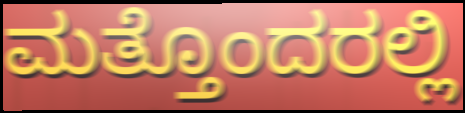
ಮತ್ತೊಂದರಲ್ಲಿ